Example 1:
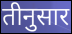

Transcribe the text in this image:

तीनुसार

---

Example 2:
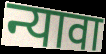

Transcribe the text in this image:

न्यावा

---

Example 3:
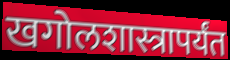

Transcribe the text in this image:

खगोलशास्त्रापर्यंत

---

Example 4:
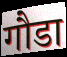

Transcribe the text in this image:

गौडा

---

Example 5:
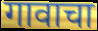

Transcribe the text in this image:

गावाचा